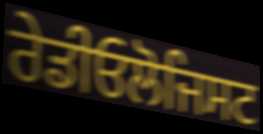
ਰੇਡੀਓਲੋਜਿਸਟ